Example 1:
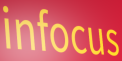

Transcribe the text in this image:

infocus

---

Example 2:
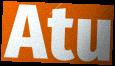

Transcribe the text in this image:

Atu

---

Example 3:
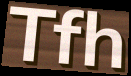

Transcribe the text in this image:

Tfh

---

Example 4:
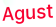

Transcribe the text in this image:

Agust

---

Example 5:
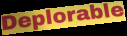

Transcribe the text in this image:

Deplorable